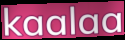
kaalaa